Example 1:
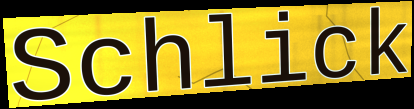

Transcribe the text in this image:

Schlick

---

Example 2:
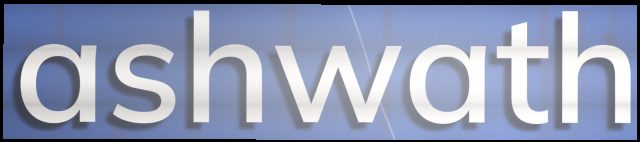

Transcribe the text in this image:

ashwath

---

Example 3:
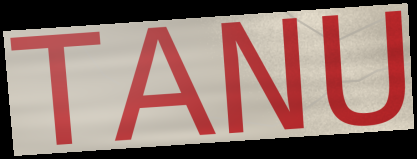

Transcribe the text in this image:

TANU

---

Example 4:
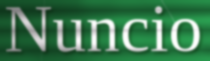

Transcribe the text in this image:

Nuncio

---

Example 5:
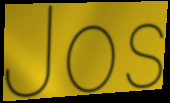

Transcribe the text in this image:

Jos